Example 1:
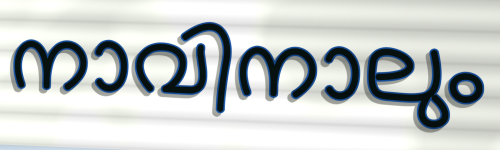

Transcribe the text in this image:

നാവിനാലും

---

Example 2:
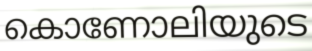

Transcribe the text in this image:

കൊണോലിയുടെ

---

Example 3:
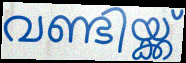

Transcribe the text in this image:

വണ്ടിയ്ക്ക്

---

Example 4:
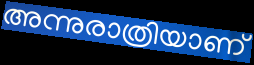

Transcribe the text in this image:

അന്നുരാത്രിയാണ്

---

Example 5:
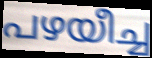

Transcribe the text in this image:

പഴയീച്ച